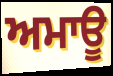
ਅਮਾਊ